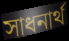
সাধনার্থ